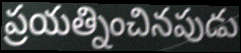
ప్రయత్నించినపుడు